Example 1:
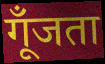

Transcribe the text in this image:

गूँजता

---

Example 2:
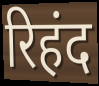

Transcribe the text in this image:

रिहंद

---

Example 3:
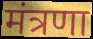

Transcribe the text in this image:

मंत्रणा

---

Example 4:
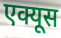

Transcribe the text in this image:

एक्यूस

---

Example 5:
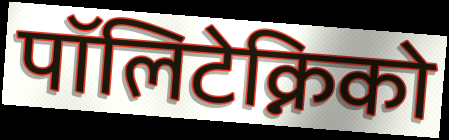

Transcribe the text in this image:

पॉलिटेक्निको